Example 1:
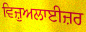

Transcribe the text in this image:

ਵਿਜ਼ੁਅਲਾਈਜ਼ਰ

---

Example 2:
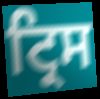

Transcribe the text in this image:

ਟ੍ਰਿਸ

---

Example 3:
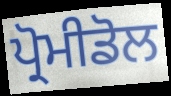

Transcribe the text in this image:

ਪ੍ਰੋਮੀਡੋਲ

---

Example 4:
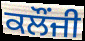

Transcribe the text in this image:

ਕਲੌਂਜੀ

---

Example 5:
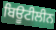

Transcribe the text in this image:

ਬਿਊਟੀਲੀਨ